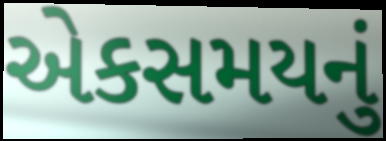
એકસમયનું